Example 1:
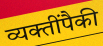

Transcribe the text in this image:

व्यक्‍तींपैकी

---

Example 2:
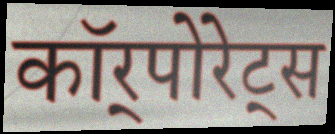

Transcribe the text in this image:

कॉर्पोरेट्‌स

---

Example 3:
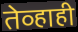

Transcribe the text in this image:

तेव्हाही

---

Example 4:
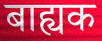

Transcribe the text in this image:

बाह्यक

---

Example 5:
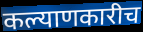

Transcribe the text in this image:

कल्याणकारीच